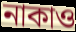
নাকাও